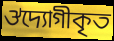
ঔদ্যোগীকৃত